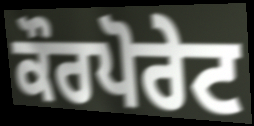
ਕੌਰਪੋਰੇਟ